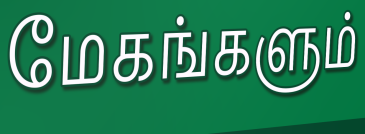
மேகங்களும்